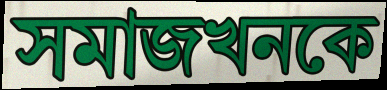
সমাজখনকে